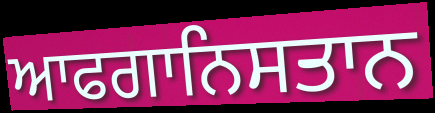
ਆਫਗਾਨਿਸਤਾਨ